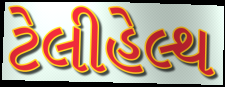
ટેલીહેલ્થ